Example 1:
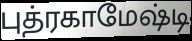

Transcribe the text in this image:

புத்ரகாமேஷ்டி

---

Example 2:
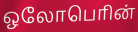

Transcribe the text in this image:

ஒலோபெரின்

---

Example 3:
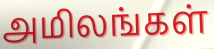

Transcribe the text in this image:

அமிலங்கள்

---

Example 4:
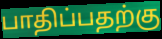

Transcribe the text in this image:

பாதிப்பதற்கு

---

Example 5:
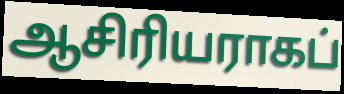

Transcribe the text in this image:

ஆசிரியராகப்